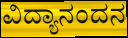
ವಿದ್ಯಾನಂದನ